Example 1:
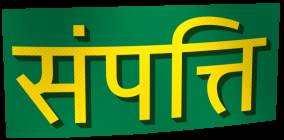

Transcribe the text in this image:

संपत्ति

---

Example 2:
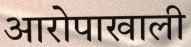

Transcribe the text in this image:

आरोपाखाली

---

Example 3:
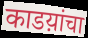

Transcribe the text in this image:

काडय़ांचा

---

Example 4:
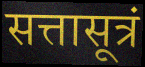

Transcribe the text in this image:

सत्तासूत्रं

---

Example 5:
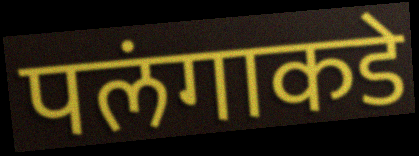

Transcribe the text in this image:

पलंगाकडे